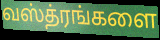
வஸ்த்ரங்களை